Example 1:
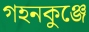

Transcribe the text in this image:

গহনকুঞ্জে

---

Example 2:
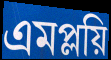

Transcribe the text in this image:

এমপ্লয়ি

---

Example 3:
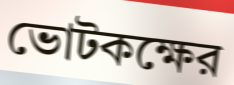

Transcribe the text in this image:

ভোটকক্ষের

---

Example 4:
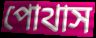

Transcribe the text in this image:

পোথাস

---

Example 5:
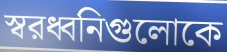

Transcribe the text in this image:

স্বরধ্বনিগুলোকে